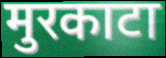
मुरकाटा